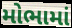
મોભામાં